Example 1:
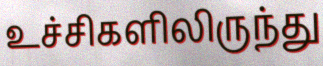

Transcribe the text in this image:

உச்சிகளிலிருந்து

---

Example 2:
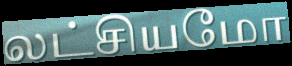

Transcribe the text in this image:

லட்சியமோ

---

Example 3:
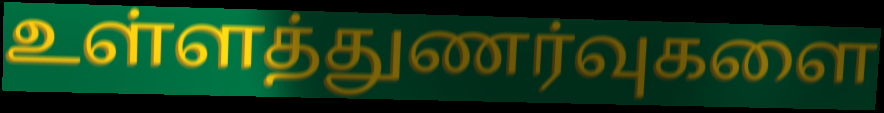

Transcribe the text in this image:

உள்ளத்துணர்வுகளை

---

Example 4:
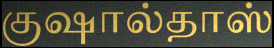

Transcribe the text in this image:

குஷால்தாஸ்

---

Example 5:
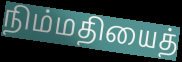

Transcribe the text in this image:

நிம்மதியைத்